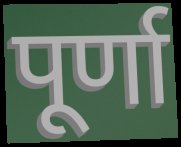
पूर्णा